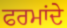
ਫਰਮਾਂਦੇ